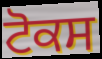
ਟੋਕਸ